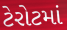
ટેરોટમાં